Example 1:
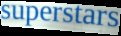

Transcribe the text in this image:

superstars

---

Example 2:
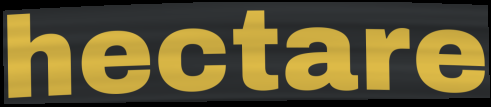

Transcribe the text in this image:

hectare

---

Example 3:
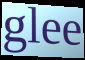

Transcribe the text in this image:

glee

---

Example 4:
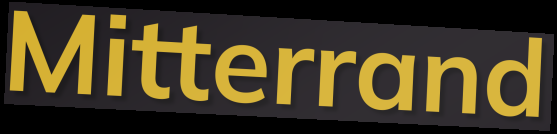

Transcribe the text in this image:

Mitterrand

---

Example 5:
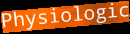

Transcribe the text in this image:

Physiologic